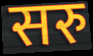
सरु